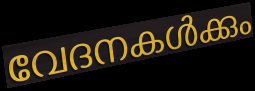
വേദനകൾക്കും